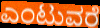
ಎಂಟುವರೆ